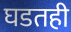
घडतही